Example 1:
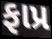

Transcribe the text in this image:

ફાપ્ર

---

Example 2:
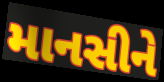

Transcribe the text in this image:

માનસીને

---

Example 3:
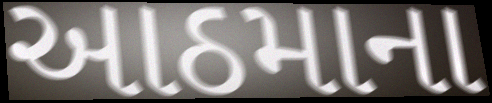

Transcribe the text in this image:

આઠમાના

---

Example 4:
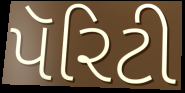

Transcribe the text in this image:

પૅરિટી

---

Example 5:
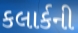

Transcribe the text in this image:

કલાર્કની